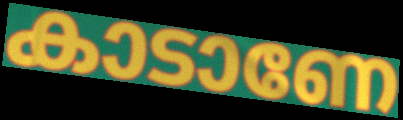
കാടാണേ